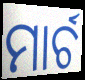
ମାର୍ଚ